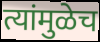
त्यांमुळेच